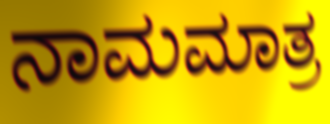
ನಾಮಮಾತ್ರ